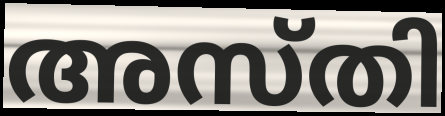
അസ്തി